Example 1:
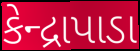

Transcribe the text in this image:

કેન્દ્રાપાડા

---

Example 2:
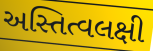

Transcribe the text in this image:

અસ્તિત્વલક્ષી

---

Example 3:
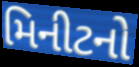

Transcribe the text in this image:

મિનીટનો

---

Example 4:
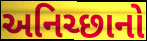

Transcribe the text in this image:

અનિચ્છાનો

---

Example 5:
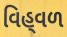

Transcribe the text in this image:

વિહ્‌વળ